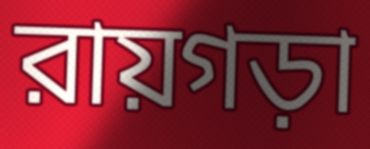
রায়গড়া